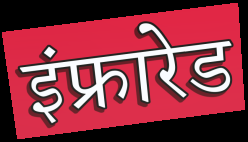
इंफ्रारेड